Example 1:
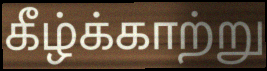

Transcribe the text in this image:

கீழ்க்காற்று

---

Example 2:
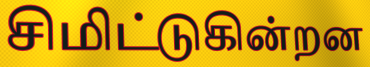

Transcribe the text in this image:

சிமிட்டுகின்றன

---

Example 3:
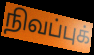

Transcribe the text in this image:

நிவப்புக்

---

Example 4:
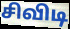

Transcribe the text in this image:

சிவிடி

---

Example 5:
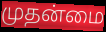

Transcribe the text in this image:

முதன்மை